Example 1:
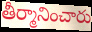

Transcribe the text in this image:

తీర్మానించారు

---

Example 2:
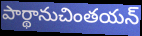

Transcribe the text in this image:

పార్థానుచింతయన్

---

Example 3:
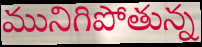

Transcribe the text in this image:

మునిగిపోతున్న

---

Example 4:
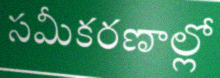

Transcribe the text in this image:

సమీకరణాల్లో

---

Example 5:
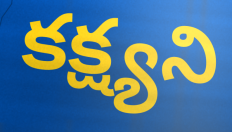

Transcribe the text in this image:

కక్ష్యని